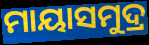
ମାୟାସମୁଦ୍ର